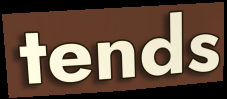
tends